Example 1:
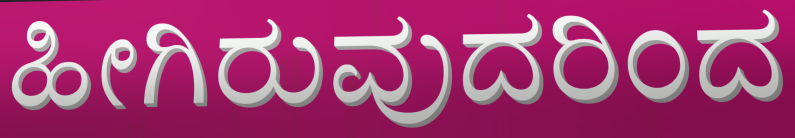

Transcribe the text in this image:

ಹೀಗಿರುವುದರಿಂದ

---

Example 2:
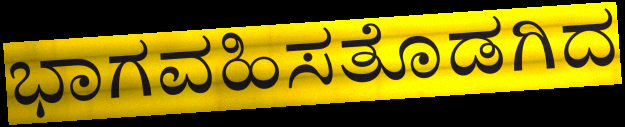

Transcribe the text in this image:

ಭಾಗವಹಿಸತೊಡಗಿದ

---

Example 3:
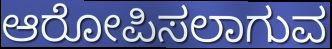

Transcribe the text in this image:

ಆರೋಪಿಸಲಾಗುವ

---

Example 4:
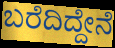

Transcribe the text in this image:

ಬರೆದಿದ್ದೇನೆ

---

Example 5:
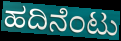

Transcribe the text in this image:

ಹದಿನೆಂಟು